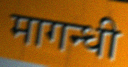
मागन्धी